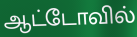
ஆட்டோவில்